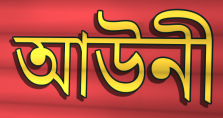
আউনী